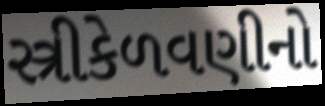
સ્ત્રીકેળવણીનો